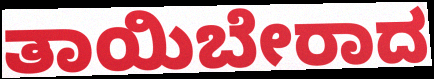
ತಾಯಿಬೇರಾದ